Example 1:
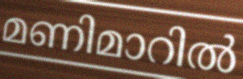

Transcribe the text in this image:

മണിമാറിൽ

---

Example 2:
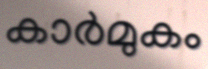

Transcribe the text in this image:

കാർമുകം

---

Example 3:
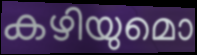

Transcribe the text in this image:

കഴിയുമൊ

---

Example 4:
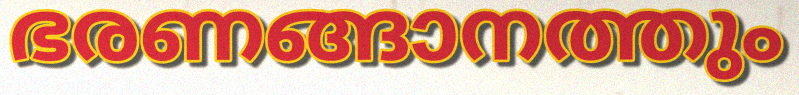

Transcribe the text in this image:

ഭരണങ്ങാനത്തും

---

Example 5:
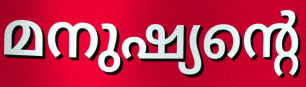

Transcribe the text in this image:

മനുഷ്യന്റെ